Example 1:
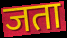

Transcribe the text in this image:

जता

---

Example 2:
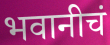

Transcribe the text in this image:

भवानीचं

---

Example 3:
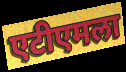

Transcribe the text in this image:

एटीएमला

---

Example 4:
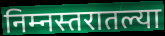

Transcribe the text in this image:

निम्नस्तरातल्या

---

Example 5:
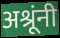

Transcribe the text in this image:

अश्रूंनी